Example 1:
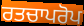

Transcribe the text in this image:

ਰਤਚਾਪਰੋਪ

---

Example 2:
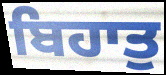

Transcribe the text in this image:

ਬਿਹਾਤੁ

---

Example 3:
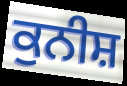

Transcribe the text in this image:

ਕੁਨੀਸ਼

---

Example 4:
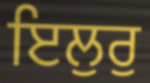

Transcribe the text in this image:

ਇਲੁਰੁ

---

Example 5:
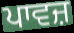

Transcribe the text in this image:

ਪਾਵਜ਼